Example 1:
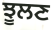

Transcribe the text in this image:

ਝੂਲਣ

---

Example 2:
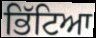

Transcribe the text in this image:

ਭਿੱਟਿਆ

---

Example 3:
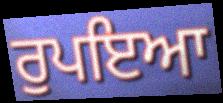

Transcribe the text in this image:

ਰੁਪਇਆ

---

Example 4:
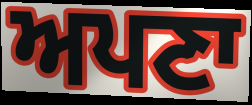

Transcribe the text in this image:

ਅਪਣਾ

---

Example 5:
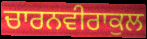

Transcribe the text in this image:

ਚਾਰਨਵੀਰਾਕੁਲ